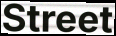
Street